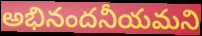
అభినందనీయమని